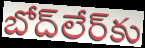
బోద్‌లేర్‌కు